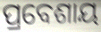
ପ୍ରବେଶାୟ